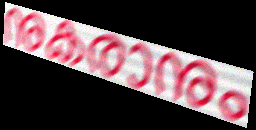
നുകരാനും